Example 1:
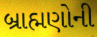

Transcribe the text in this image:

બ્રાહ્મણોની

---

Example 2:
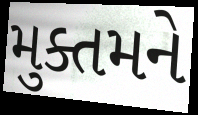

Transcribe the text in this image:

મુક્તમને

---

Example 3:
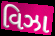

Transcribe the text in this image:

વિઝા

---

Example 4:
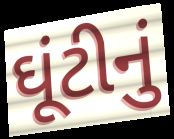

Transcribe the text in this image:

ઘૂંટીનું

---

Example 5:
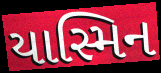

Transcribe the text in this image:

યાસ્મિન